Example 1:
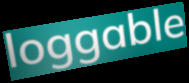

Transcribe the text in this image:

loggable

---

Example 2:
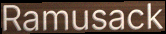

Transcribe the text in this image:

Ramusack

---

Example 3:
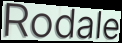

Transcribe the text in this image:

Rodale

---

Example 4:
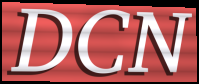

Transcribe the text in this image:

DCN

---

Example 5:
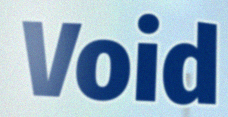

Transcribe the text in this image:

Void